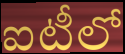
ఐటీలో